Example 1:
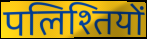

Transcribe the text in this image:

पलिश्तियों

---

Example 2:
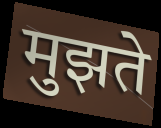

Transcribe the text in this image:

मुझते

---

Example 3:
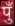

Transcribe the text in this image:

पुँ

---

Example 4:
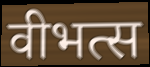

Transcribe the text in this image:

वीभत्स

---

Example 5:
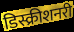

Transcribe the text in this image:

डिस्क्रीशनरी